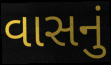
વાસનું